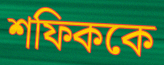
শফিককে